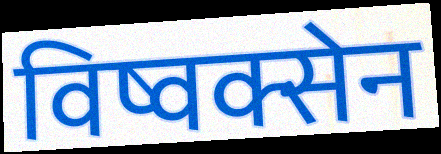
विष्वक्सेन